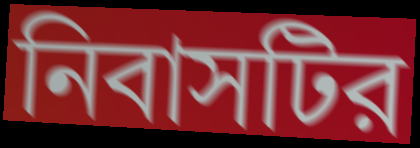
নিবাসটির